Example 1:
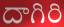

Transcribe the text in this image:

దాగిరి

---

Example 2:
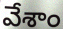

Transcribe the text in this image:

వేశాం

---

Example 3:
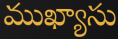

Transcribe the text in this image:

ముఖ్యాసు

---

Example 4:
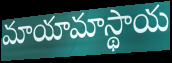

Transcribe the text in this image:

మాయామాస్థాయ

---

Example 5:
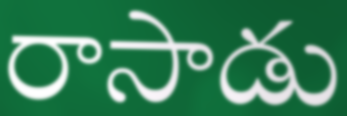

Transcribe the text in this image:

రాసాడు